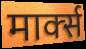
मार्क्‍स